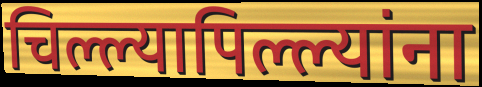
चिल्ल्यापिल्ल्यांना